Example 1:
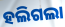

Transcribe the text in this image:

ହଲିଗଲା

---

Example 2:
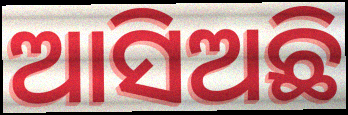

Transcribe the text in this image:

ଆସିଅଛି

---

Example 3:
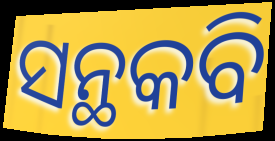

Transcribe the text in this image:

ସନ୍ଥକବି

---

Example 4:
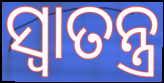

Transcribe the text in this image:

ସ୍ୱାତନ୍ତ୍ର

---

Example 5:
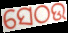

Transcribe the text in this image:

ସେଠଉ